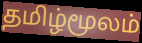
தமிழ்மூலம்